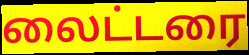
லைட்டரை